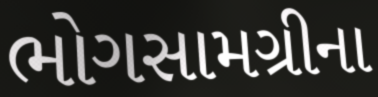
ભોગસામગ્રીના